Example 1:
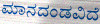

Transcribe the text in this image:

ಮಾನದಂಡವಿದೆ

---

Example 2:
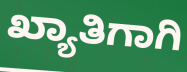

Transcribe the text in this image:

ಖ್ಯಾತಿಗಾಗಿ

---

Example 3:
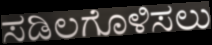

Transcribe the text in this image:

ಸಡಿಲಗೊಳಿಸಲು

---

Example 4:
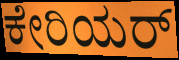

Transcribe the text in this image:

ಕೇರಿಯರ್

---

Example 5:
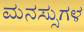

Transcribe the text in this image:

ಮನಸ್ಸುಗಳ